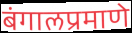
बंगालप्रमाणे